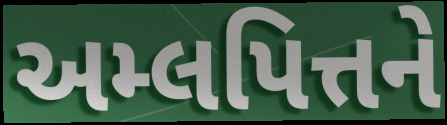
અમ્લપિત્તને